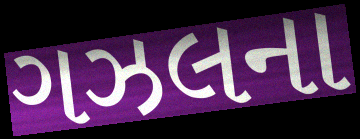
ગઝલના